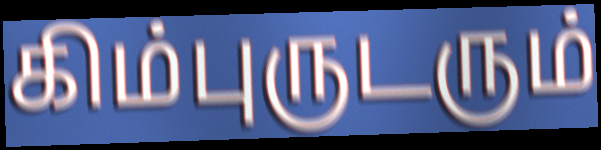
கிம்புருடரும்